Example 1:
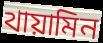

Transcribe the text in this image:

থায়ামিন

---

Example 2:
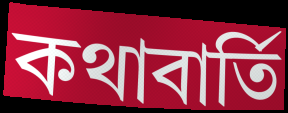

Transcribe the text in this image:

কথাবার্তি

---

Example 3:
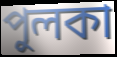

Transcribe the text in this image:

পুলকা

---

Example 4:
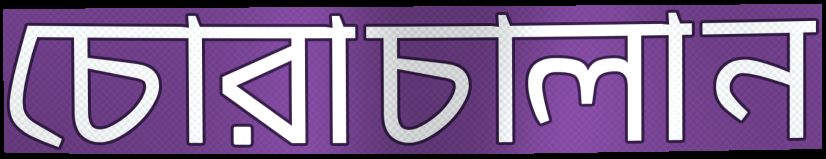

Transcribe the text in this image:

চোরাচালান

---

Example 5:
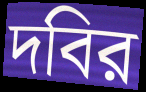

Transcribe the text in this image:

দবির